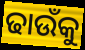
ଢାଉଁକୁ